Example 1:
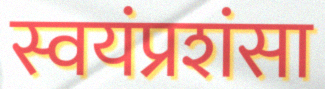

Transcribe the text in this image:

स्वयंप्रशंसा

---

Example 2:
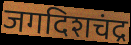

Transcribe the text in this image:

जगदिशचंद्र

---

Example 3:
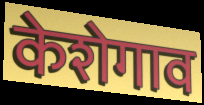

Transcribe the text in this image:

केशेगाव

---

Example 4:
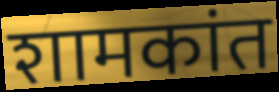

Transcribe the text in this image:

शामकांत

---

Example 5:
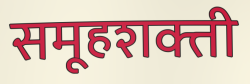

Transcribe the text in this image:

समूहशक्ती